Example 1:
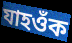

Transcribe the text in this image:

যাহওঁক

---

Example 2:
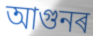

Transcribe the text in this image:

আগুনৰ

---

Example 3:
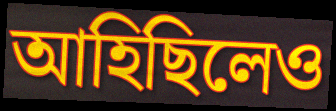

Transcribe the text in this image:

আহিছিলেও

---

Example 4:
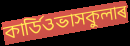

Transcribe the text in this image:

কাৰ্ডিওভাসকুলাৰ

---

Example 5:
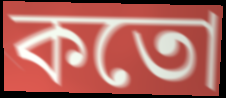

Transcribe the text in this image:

কতো